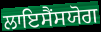
ਲਾਇਸੈਂਸਯੋਗ